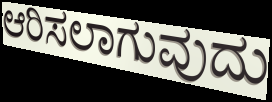
ಆರಿಸಲಾಗುವುದು